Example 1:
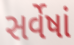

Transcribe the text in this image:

સર્વેષાં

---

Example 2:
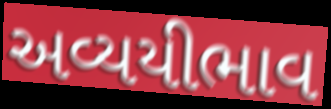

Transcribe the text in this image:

અવ્યયીભાવ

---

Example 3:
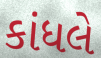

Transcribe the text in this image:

કાંધલે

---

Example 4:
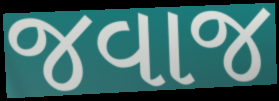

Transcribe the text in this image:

જવાજ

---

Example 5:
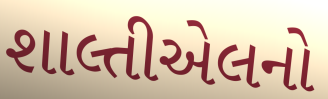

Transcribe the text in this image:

શાલ્તીએલનો